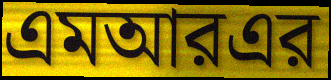
এমআরএর